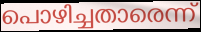
പൊഴിച്ചതാരെന്ന്